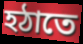
হঠাতে